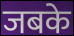
जबके